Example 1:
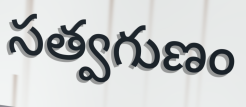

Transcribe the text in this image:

సత్వగుణం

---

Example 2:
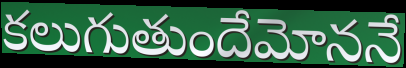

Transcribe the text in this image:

కలుగుతుందేమోననే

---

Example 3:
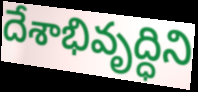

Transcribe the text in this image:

దేశాభివృద్ధిని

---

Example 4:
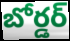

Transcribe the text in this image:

బోర్డర్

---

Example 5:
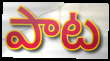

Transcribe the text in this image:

పాట